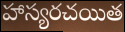
హాస్యరచయిత